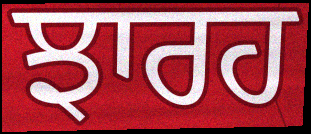
ਝਾਰਹ